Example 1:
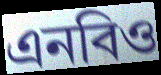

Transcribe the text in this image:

এনবিও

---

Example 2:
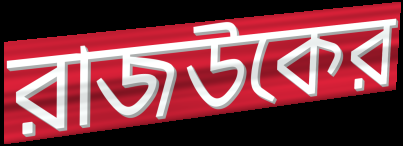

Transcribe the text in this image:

রাজউকের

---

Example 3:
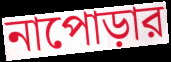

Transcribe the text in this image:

নাপোড়ার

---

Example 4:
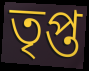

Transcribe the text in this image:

তৃপ্ত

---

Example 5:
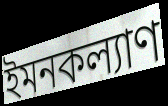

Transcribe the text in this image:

ইমনকল্যাণ